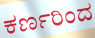
ಕರ್ಣರಿಂದ